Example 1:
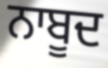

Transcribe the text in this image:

ਨਾਬੂਦ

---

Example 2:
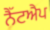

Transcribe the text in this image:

ਨੈੱਟਐਪ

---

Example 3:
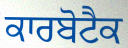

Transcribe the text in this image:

ਕਾਰਬੋਟੈਕ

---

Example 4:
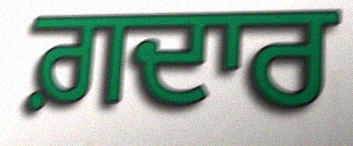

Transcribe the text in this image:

ਗ਼ਦਾਰ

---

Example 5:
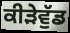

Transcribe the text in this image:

ਕੀੜੇਵੁੱਡ